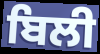
ਬਿਲੀ